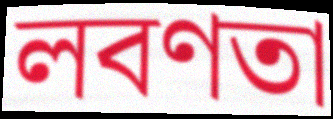
লবণতা